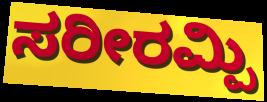
ಸರೀರಮ್ಪಿ